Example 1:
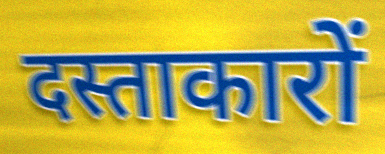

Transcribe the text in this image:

दस्ताकारों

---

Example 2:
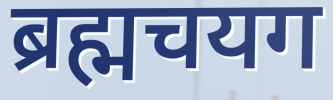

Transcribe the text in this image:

ब्रह्मचयग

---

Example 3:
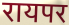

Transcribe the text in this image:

रायपर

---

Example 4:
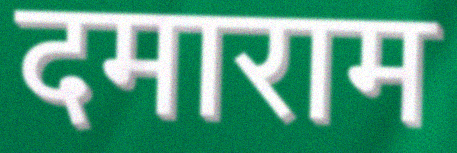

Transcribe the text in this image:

दमाराम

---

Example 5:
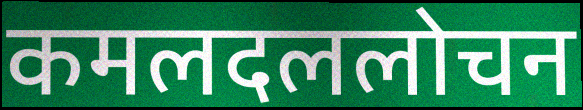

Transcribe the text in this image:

कमलदललोचन